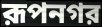
রূপনগর